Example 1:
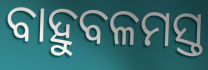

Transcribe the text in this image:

ବାହୁବଳମସ୍ତ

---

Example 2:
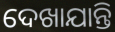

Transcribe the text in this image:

ଦେଖାଯାନ୍ତି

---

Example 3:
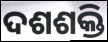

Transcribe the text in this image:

ଦଶଶକ୍ତି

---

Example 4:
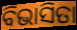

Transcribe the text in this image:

ବିଭାସିତା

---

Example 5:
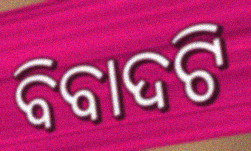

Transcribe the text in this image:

ବିବାଦଟି